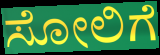
ಸೋಲಿಗೆ